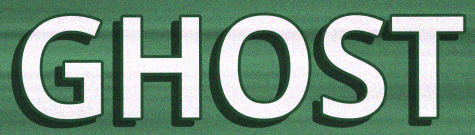
GHOST